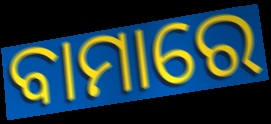
ବାମାରେ